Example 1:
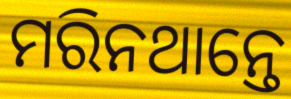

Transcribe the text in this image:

ମରିନଥାନ୍ତେ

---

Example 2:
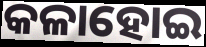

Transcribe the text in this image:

କଳାହୋଇ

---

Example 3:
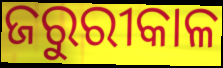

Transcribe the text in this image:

ଜରୁରୀକାଳ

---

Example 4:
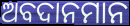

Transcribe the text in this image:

ଅବଦାନମାନ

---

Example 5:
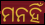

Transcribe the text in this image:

ମନହିଁ